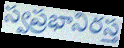
స్వప్రభానిరస్త